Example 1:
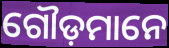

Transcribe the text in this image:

ଗୌଡ଼ମାନେ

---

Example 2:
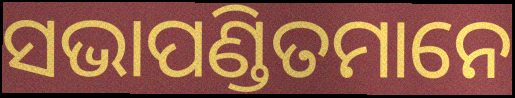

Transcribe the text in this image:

ସଭାପଣ୍ଡିତମାନେ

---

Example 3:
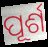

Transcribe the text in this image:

ପୂର୍ଶ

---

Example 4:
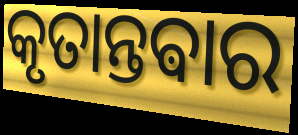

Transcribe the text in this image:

କୃତାନ୍ତଵାର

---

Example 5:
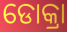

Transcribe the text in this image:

ଡୋକ୍ରା